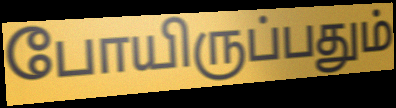
போயிருப்பதும்